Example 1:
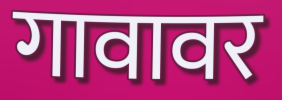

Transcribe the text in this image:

गावावर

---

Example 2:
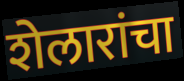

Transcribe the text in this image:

शेलारांचा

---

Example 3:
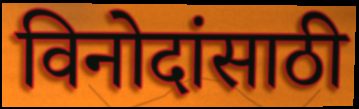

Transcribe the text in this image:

विनोदांसाठी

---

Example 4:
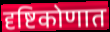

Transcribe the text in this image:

दृष्टिकोणात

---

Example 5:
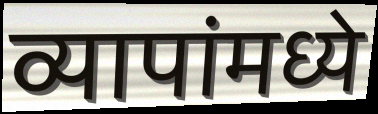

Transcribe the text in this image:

व्यापांमध्ये